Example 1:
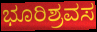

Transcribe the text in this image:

ಭೂರಿಶ್ರವಸ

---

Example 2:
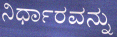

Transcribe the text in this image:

ನಿರ್ಧಾರವನ್ನು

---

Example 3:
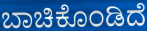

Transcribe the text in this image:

ಬಾಚಿಕೊಂಡಿದೆ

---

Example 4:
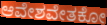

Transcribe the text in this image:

ಆವೇಶವೇತಕೋ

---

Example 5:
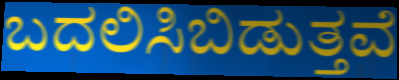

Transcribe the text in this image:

ಬದಲಿಸಿಬಿಡುತ್ತವೆ